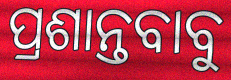
ପ୍ରଶାନ୍ତବାବୁ